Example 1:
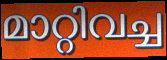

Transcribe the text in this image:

മാറ്റിവച്ച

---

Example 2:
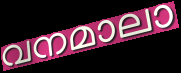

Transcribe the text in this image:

വനമാലാ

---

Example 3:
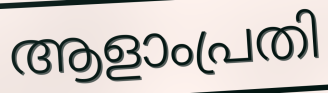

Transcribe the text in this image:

ആളാംപ്രതി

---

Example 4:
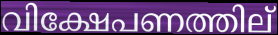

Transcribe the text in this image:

വിക്ഷേപണത്തില്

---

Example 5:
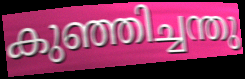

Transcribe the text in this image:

കുഞ്ഞിച്ചന്തു